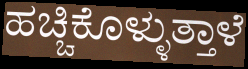
ಹಚ್ಚಿಕೊಳ್ಳುತ್ತಾಳೆ